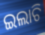
ଇଲାଚି